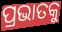
ପ୍ରଭାତକୁ